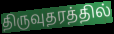
திருவுதரத்தில்